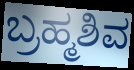
ಬ್ರಹ್ಮಶಿವ